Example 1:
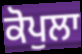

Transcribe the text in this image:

ਕੋਪੁਲਾ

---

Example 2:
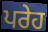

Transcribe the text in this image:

ਪਰੇਹ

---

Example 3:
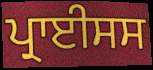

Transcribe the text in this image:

ਪ੍ਰਾਈਸਸ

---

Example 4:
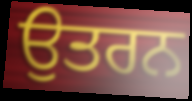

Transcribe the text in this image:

ਉਤਰਨ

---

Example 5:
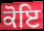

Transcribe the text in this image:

ਕੋਇ